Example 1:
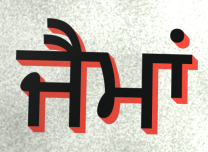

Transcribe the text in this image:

ਜੈਮਾਂ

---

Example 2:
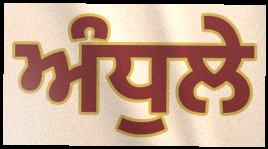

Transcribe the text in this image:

ਅੰਧੁਲੇ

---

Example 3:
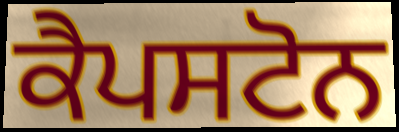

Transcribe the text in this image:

ਕੈਪਸਟੋਨ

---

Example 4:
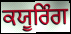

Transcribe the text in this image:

ਕਯੂਰਿੰਗ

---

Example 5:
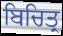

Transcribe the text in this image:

ਬਿਚਿਤ੍ਰ